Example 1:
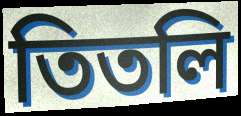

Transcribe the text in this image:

তিতলি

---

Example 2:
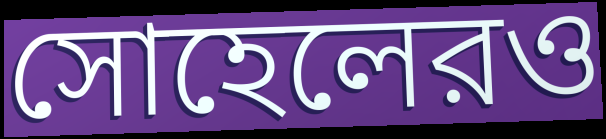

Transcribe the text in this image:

সোহেলেরও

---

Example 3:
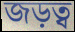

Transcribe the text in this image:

জড়ত্ব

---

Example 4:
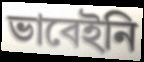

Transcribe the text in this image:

ভাবেইনি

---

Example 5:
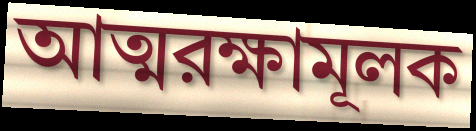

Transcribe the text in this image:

আত্মরক্ষামূলক